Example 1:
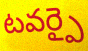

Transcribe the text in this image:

టవర్పై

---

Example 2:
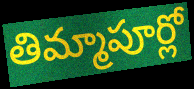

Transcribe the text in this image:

తిమ్మాపూర్లో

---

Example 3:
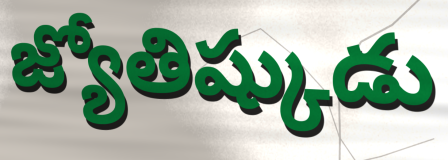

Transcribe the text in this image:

జ్యోతిష్కుడు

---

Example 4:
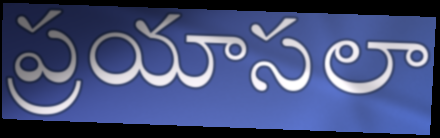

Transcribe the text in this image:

ప్రయాసలా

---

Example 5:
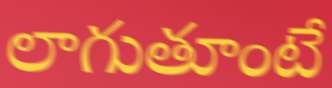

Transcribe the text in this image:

లాగుతూంటే